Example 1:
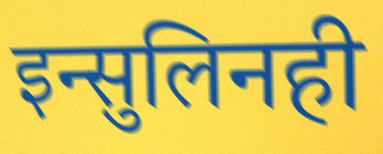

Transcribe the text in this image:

इन्सुलिनही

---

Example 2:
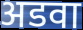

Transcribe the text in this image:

अडवा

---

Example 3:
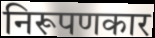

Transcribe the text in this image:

निरूपणकार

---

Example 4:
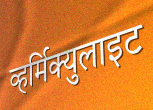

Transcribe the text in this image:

व्हर्मिक्युलाइट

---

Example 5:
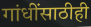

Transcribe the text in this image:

गांधींसाठीही